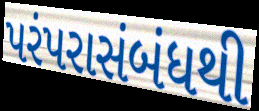
પરંપરાસંબંધથી